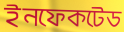
ইনফেকটেড